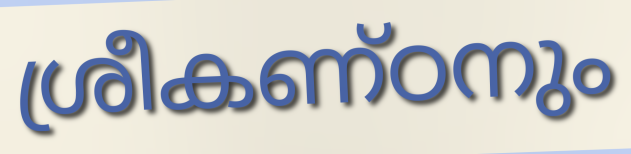
ശ്രീകണ്ഠനും